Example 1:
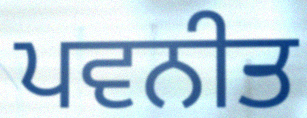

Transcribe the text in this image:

ਪਵਨੀਤ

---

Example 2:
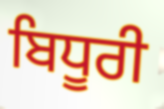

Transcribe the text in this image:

ਬਿਧੂਰੀ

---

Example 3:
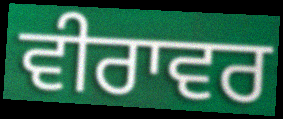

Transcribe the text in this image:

ਵੀਰਾਵਰ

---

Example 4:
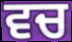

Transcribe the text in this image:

ਵਚ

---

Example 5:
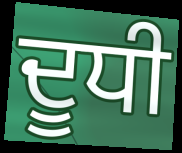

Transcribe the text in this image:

ਦੂਧੀ